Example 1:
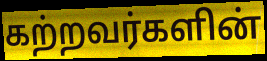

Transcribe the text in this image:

கற்றவர்களின்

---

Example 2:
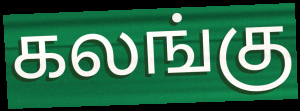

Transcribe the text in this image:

கலங்கு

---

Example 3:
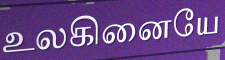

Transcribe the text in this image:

உலகினையே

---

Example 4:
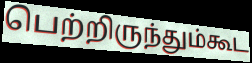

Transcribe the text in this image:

பெற்றிருந்தும்கூட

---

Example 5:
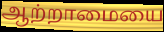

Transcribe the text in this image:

ஆற்றாமையை